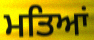
ਮਤਿਆਂ